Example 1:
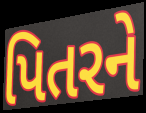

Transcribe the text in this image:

પિતરને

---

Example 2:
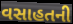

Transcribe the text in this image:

વસાહતની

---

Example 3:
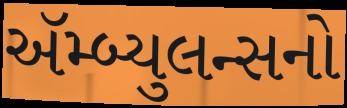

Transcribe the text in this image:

ઍમ્બ્યુલન્સનો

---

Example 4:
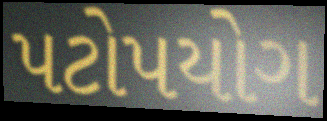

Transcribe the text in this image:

પટોપયોગ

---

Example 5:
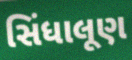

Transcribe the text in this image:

સિંધાલૂણ